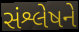
સંશ્લેષને